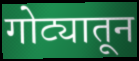
गोट्यातून